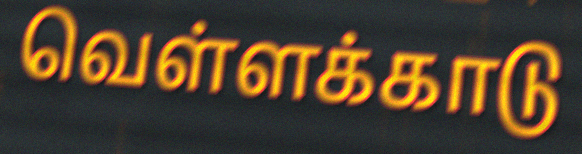
வெள்ளக்காடு